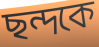
ছন্দকে